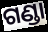
ଗଣ୍ଡା